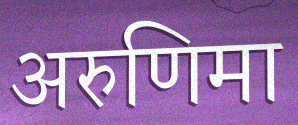
अरुणिमा